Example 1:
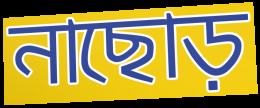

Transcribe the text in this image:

নাছোড়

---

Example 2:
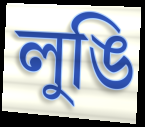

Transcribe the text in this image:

লুঙি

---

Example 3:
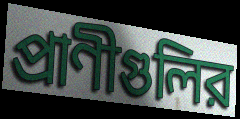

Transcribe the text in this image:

প্রাণীগুলির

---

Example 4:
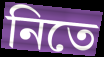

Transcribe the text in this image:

নিতে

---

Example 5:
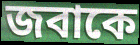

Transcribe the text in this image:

জবাকে